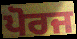
ਪੋਰਜ